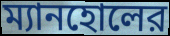
ম্যানহোলের